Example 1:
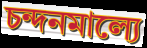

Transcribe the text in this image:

চন্দনমাল্যে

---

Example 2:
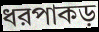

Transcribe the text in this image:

ধরপাকড়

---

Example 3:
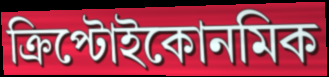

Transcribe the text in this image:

ক্রিপ্টোইকোনমিক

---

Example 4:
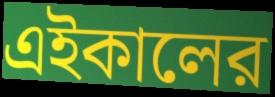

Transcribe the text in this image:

এইকালের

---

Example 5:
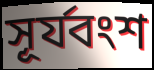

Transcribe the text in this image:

সূর্যবংশ